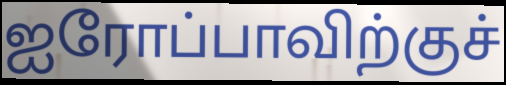
ஐரோப்பாவிற்குச்